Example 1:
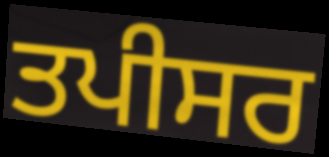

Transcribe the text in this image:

ਤਪੀਸਰ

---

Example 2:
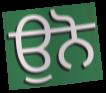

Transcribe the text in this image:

ਉਨੋ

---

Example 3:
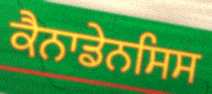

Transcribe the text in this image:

ਕੈਨਾਡੇਨਸਿਸ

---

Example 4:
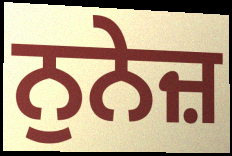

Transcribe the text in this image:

ਨੁਨੇਜ਼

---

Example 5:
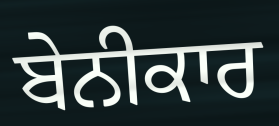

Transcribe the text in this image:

ਬੇਨੀਕਾਰ